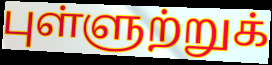
புள்ளுற்றுக்